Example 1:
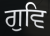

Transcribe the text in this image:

ਗੁਵਿ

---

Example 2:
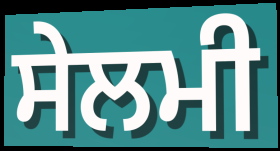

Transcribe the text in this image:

ਸੇਲਮੀ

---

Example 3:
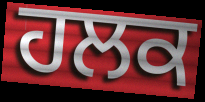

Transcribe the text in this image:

ਹਲਕ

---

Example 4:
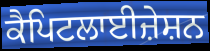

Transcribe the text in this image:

ਕੈਪਿਟਲਾਈਜ਼ੇਸ਼ਨ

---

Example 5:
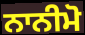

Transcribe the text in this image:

ਨਾਨੀਮੋ